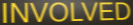
INVOLVED